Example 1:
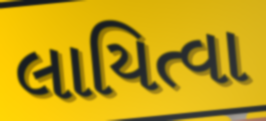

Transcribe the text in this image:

લાયિત્વા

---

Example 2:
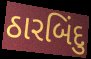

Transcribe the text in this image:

ઠારબિંદુ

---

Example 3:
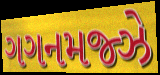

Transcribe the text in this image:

ગગનમજ્ઝે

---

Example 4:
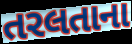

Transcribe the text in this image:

તરલતાના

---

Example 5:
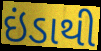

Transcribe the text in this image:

ઇંડાથી